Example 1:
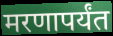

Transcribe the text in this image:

मरणापर्यंत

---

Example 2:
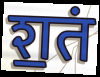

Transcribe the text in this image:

श॒तं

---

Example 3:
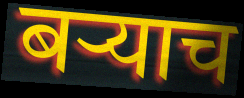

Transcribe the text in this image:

बऱ्याच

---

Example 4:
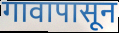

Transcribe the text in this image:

गावापासून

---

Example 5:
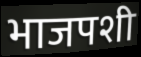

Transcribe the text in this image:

भाजपशी